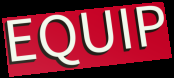
EQUIP